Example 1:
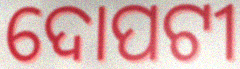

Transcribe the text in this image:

ଦୋପଟୀ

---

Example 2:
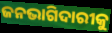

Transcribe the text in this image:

ଜନଭାଗିଦାରୀକୁ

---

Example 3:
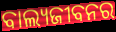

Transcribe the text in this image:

ବାଲ୍ୟଜୀବନର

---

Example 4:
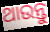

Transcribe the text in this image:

ଥାଉନ୍ତୁ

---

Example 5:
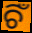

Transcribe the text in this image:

ଚିଁ